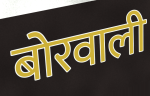
बोरवाली